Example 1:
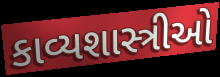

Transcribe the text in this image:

કાવ્યશાસ્ત્રીઓ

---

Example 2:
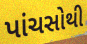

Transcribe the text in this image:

પાંચસોથી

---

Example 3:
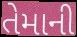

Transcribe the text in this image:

તેમાની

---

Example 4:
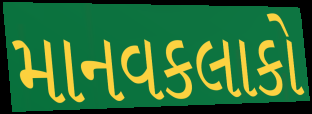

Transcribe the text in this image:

માનવકલાકો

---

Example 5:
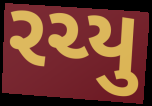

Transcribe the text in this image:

રચ્યુ